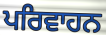
ਪਰਿਵਾਹਨ